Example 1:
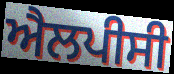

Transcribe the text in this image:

ਐਲਪੀਸੀ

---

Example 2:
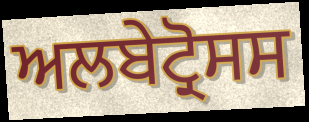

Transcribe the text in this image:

ਅਲਬੇਟ੍ਰੋਸਸ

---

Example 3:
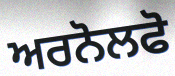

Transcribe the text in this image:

ਅਰਨੋਲਫੋ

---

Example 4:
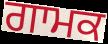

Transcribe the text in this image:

ਗਾਮਕ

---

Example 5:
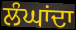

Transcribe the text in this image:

ਲੰਘਾਂਦਾ